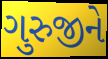
ગુરુજીને